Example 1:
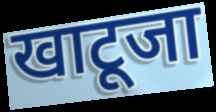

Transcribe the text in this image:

खाटूजा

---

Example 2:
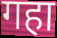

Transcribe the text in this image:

गहा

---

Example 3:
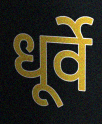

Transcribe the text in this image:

धूर्वे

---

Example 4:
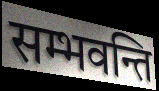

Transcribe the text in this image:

सम्भवन्ति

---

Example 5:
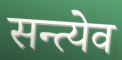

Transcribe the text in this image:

सन्त्येव